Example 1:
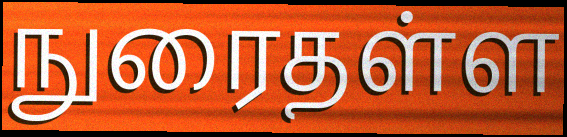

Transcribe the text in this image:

நுரைதள்ள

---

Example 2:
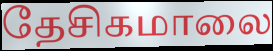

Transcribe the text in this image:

தேசிகமாலை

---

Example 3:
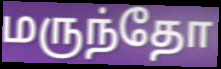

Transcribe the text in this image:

மருந்தோ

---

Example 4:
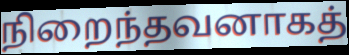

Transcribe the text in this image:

நிறைந்தவனாகத்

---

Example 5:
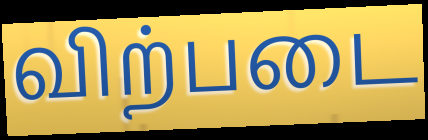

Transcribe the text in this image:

விற்படை